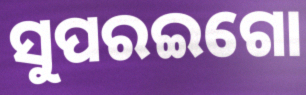
ସୁପରଇଗୋ